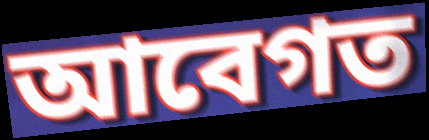
আবেগত